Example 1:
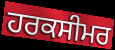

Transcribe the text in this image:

ਹਰਕਸੀਮਰ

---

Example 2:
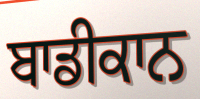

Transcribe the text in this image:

ਬਾਡੀਕਾਨ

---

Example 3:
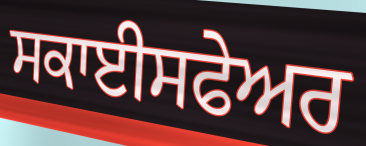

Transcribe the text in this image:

ਸਕਾਈਸਫੇਅਰ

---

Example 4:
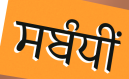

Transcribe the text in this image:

ਸਬੰਧੀਂ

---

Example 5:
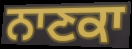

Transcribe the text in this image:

ਨਾਣਕਾ